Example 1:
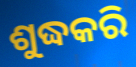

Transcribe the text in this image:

ଶୁଦ୍ଧକରି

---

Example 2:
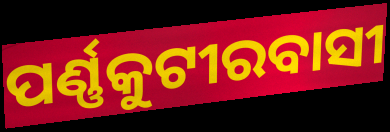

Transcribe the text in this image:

ପର୍ଣ୍ଣକୁଟୀରବାସୀ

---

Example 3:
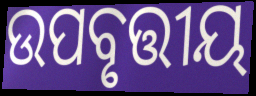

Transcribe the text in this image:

ଉପବୃତ୍ତୀୟ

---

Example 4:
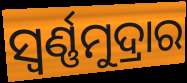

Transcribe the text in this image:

ସ୍ୱର୍ଣ୍ଣମୁଦ୍ରାର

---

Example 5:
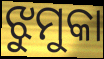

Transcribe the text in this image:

ଝୁମୁକା